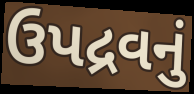
ઉપદ્રવનું